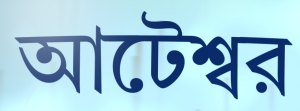
আটেশ্বর